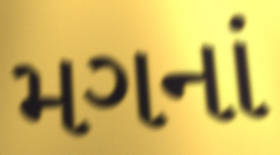
મગનાં